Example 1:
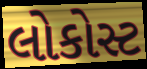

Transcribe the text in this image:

લોકોસ્ટ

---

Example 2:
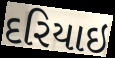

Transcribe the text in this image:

દરિયાઇ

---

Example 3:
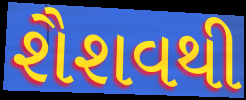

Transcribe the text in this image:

શૈશવથી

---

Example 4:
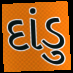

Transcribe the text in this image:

દાંડુ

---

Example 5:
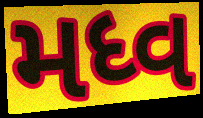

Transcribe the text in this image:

મધ્વ